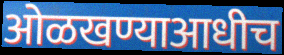
ओळखण्याआधीच